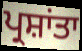
ਪ੍ਰਸ਼ਾਂਤਾ